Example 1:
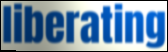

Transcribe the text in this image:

liberating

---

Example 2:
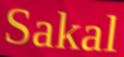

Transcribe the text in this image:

Sakal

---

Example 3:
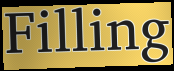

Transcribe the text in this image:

Filling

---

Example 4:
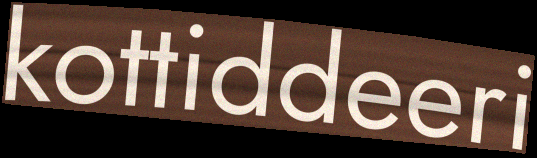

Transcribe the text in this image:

kottiddeeri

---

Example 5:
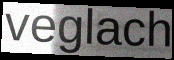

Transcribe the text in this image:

veglach